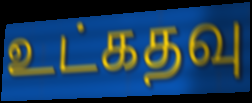
உட்கதவு